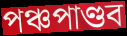
পঞ্চপাণ্ডব